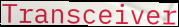
Transceiver